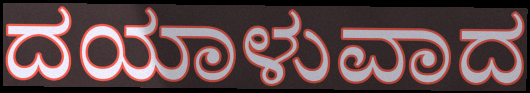
ದಯಾಳುವಾದ